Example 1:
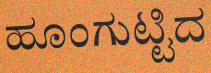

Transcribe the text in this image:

ಹೂಂಗುಟ್ಟಿದ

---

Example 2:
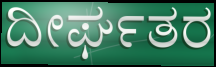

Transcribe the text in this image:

ದೀರ್ಘತರ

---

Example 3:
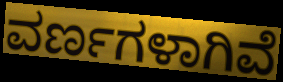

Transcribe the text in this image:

ವರ್ಣಗಳಾಗಿವೆ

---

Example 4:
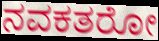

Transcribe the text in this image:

ನವಕತರೋ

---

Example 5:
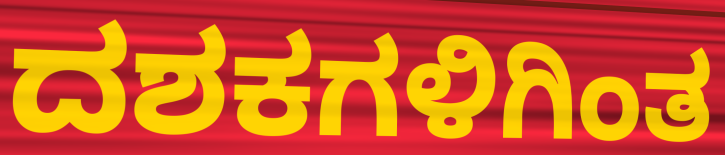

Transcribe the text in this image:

ದಶಕಗಳಿಗಿಂತ